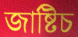
জাষ্টিচ